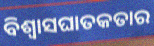
ବିଶ୍ଵାସଘାତକତାର